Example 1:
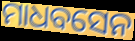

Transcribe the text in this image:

ମାଧବସେନ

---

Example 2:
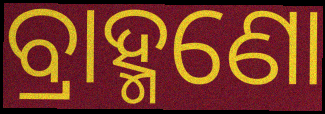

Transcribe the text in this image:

ବ୍ରାହ୍ମଣୋ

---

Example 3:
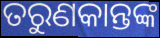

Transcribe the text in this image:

ତରୁଣକାନ୍ତଙ୍କ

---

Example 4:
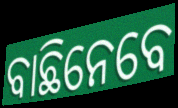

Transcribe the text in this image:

ବାଛିନେବେ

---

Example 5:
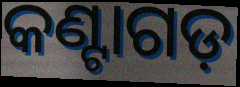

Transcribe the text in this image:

କଣ୍ଟାଗଡ଼